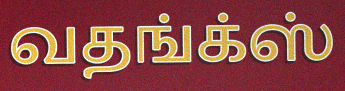
வதங்க்ஸ்